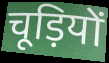
चूड़ियों